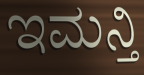
ಇಮನ್ತಿ